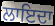
ਲਾਇਦਾ